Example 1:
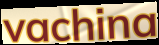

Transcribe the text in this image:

vachina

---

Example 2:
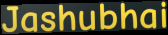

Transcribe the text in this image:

Jashubhai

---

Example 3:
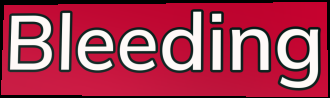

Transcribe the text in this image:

Bleeding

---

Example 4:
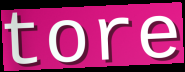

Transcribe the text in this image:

tore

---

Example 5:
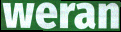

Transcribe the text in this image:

weran